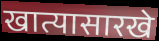
खात्यासारखे